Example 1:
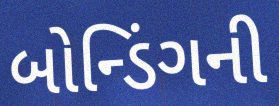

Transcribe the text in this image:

બોન્ડિંગની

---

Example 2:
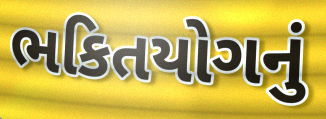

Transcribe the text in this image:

ભકિતયોગનું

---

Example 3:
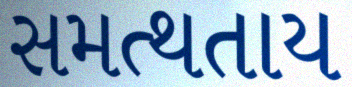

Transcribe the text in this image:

સમત્થતાય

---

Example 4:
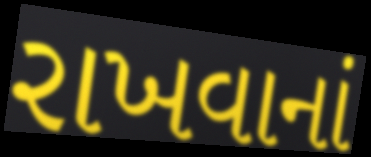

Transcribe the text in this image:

રાખવાનાં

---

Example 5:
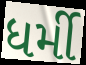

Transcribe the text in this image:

ધર્મી